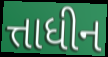
ત્તાધીન